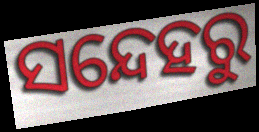
ସନ୍ଦେହରୁ